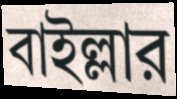
বাইল্লার